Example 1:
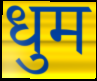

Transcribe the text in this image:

धुम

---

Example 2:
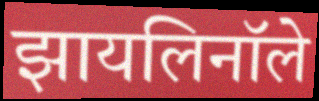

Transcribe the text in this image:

झायलिनॉले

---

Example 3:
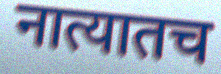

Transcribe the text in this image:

नात्यातच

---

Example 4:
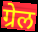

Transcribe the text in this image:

ग्रेल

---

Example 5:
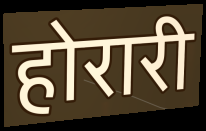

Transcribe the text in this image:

होरारी